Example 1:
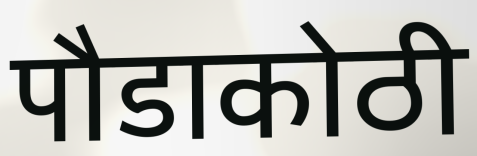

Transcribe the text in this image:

पौडाकोठी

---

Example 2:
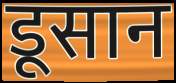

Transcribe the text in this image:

डूसान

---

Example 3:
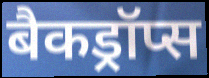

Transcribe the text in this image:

बैकड्रॉप्स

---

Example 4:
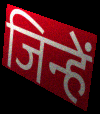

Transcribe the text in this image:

जिन्‍हें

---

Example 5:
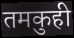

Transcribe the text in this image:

तमकुही